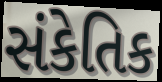
સંકેતિક